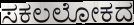
ಸಕಲಲೋಕದ